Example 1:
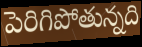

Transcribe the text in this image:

పెరిగిపోతున్నది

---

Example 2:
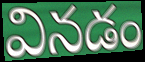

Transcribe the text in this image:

వినడం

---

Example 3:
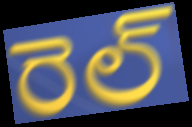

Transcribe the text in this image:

రెల్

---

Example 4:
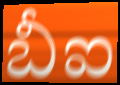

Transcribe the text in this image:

బీఐ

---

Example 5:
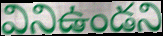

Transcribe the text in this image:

వినిఉండని